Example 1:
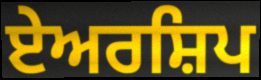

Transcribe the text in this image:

ਏਅਰਸ਼ਿਪ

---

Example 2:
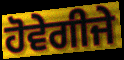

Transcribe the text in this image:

ਹੋਵੇਗੀਜੇ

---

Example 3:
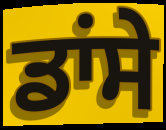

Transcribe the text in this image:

ਡਾਂਸੇ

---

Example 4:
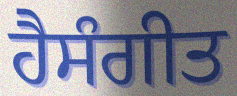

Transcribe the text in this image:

ਹੈਸੰਗੀਤ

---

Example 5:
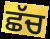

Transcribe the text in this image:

ਛੱਚ